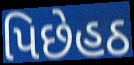
પિછેહઠ